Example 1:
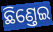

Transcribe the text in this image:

ଛିଣ୍ତେଇ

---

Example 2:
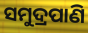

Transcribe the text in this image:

ସମୁଦ୍ରପାଣି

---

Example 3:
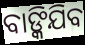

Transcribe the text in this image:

ବାଙ୍କିଯିବ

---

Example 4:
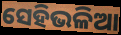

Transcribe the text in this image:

ସେହିଭଳିଆ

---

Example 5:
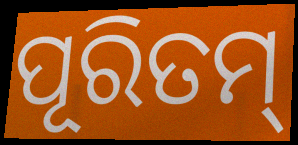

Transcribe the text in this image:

ପୂରିତମ୍